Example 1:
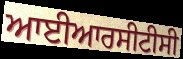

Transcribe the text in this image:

ਆਈਆਰਸੀਟੀਸੀ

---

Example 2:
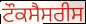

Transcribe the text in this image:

ਟੌਕਸੈਸਰੀਸ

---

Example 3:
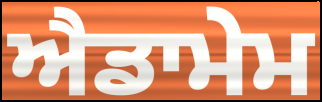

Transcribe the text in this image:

ਐਡਾਮੇਮ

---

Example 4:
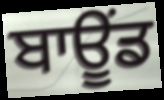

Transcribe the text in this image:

ਬਾਊਂਡ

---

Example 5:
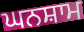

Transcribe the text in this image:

ਘਨਸ਼ਾਮ